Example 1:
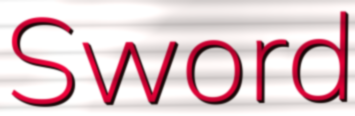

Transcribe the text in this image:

Sword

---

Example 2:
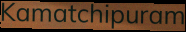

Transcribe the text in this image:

Kamatchipuram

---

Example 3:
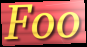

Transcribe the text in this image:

Foo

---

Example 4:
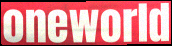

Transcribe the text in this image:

oneworld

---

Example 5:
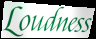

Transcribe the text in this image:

Loudness